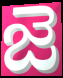
జె